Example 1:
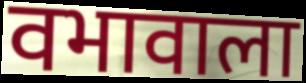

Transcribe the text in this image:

वभावाला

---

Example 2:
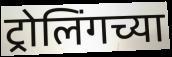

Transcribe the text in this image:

ट्रोलिंगच्या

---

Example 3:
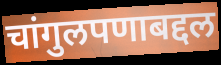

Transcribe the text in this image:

चांगुलपणाबद्दल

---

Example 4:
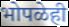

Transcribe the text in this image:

भोपळेही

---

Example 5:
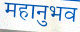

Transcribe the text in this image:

महानुभव